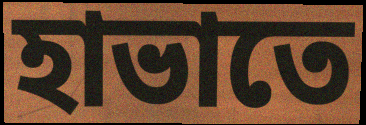
হাভাতে